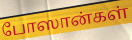
போஸான்கள்